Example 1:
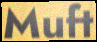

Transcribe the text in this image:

Muft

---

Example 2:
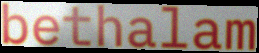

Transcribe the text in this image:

bethalam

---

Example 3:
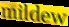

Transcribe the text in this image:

mildew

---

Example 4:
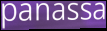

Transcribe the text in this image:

panassa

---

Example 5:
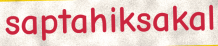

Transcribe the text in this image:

saptahiksakal